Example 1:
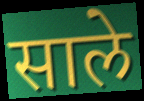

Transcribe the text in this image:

साले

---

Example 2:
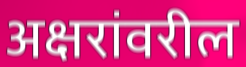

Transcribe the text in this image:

अक्षरांवरील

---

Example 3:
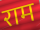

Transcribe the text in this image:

राम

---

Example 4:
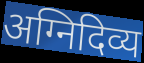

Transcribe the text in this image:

अग्निदिव्य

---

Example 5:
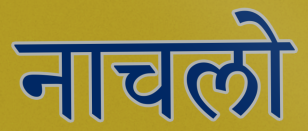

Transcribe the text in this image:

नाचलो